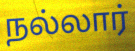
நல்லார்